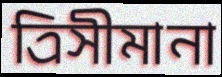
ত্রিসীমানা